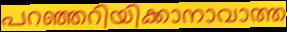
പറഞ്ഞറിയിക്കാനാവാത്ത